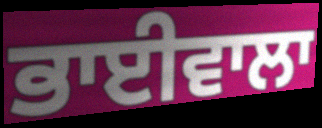
ਭਾਈਵਾਲਾ